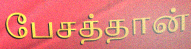
பேசத்தான்